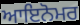
ਆਇਨੋਮਰ